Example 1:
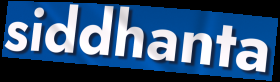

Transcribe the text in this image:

siddhanta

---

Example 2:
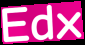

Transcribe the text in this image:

Edx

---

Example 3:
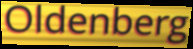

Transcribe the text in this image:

Oldenberg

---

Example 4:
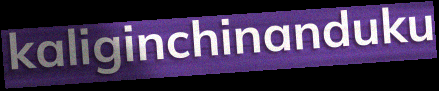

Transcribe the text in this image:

kaliginchinanduku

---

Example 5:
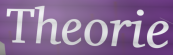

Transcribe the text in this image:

Theorie